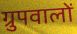
ग्रुपवालों